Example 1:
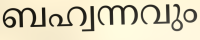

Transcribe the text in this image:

ബഹ്വന്നവും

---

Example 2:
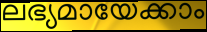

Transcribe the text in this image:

ലഭ്യമായേക്കാം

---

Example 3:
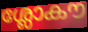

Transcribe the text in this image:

ശ്ലോകൗ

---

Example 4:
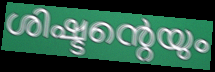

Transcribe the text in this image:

ശിഷ്ടന്റെയും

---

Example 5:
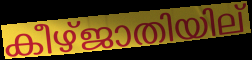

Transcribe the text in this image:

കീഴ്ജാതിയില്